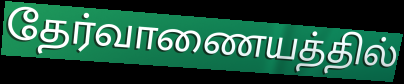
தேர்வாணையத்தில்